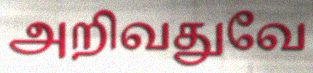
அறிவதுவே